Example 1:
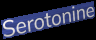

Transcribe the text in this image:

Serotonine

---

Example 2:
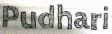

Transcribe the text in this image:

Pudhari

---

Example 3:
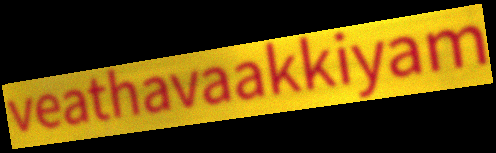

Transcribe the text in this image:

veathavaakkiyam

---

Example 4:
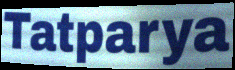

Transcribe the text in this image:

Tatparya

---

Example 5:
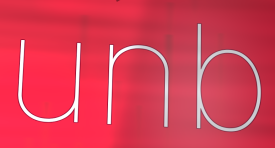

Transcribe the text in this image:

unb